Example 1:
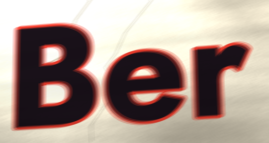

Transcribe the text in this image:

Ber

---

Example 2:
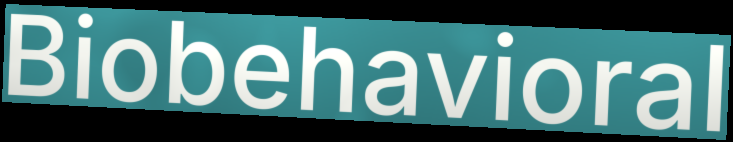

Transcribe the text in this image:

Biobehavioral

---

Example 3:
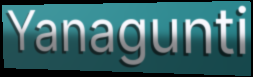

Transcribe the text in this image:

Yanagunti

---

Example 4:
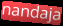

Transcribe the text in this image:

nandaja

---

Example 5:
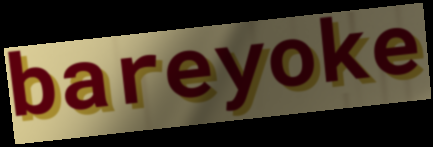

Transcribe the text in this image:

bareyoke